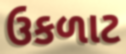
ઉકળાટ